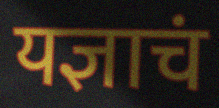
यज्ञाचं